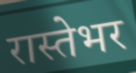
रास्तेभर